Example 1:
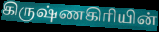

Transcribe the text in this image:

கிருஷ்ணகிரியின்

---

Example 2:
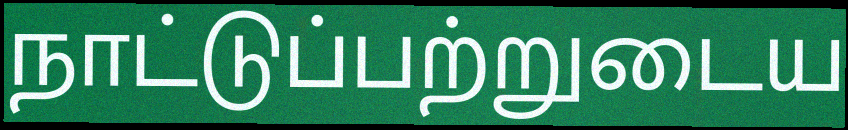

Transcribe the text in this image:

நாட்டுப்பற்றுடைய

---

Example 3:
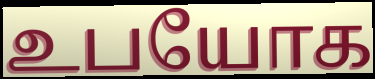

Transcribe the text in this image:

உபயோக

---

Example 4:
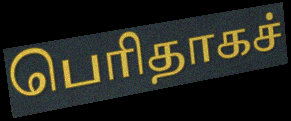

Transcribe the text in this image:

பெரிதாகச்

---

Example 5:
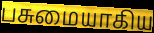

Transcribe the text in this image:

பசுமையாகிய